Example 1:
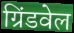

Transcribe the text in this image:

ग्रिंडवेल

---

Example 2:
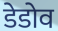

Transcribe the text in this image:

डेडोव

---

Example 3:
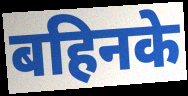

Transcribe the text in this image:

बहिनके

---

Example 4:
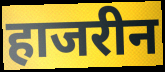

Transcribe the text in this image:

हाजरीन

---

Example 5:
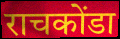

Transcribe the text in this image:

राचकोंडा